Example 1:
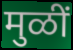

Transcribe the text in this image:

मुळीं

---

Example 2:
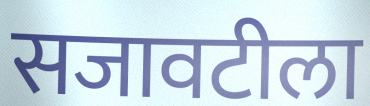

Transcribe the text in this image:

सजावटीला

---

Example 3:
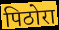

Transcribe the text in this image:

पिठोरा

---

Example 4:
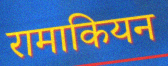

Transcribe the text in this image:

रामाकियन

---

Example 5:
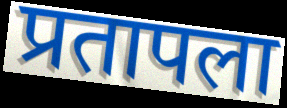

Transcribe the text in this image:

प्रतापला